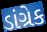
ડાંગ્રેક